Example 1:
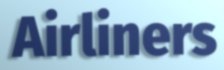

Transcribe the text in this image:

Airliners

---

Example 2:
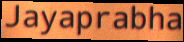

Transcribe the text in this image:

Jayaprabha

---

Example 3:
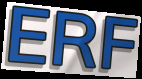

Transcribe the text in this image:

ERF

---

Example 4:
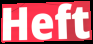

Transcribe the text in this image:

Heft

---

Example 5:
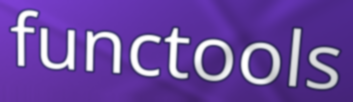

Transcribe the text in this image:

functools